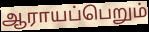
ஆராயப்பெறும்